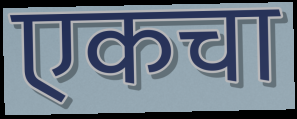
एकचा